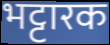
भट्टारक